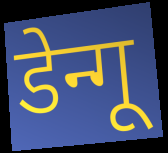
डेन्गू